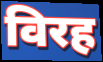
विरह